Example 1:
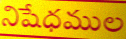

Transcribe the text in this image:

నిషేధముల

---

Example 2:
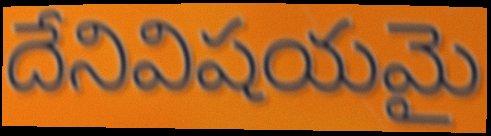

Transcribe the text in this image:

దేనివిషయమై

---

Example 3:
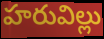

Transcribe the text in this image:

హరువిల్లు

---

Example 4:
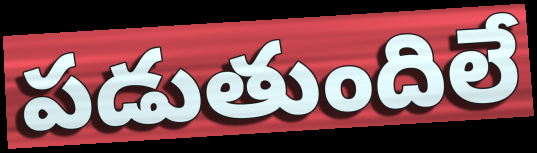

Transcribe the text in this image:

పడుతుందిలే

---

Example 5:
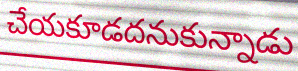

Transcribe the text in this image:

చేయకూడదనుకున్నాడు